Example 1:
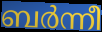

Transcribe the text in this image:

ബർന്നീ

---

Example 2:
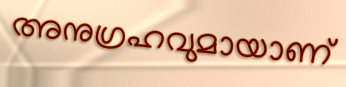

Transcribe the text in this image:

അനുഗ്രഹവുമായാണ്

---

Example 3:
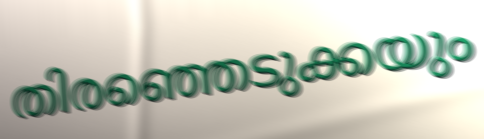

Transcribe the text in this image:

തിരഞ്ഞെടുക്കയും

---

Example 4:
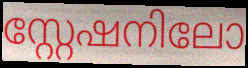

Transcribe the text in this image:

സ്റ്റേഷനിലോ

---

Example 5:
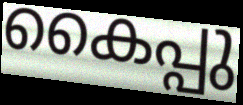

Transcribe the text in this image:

കൈപ്പു